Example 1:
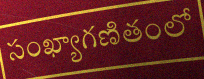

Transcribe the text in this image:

సంఖ్యాగణితంలో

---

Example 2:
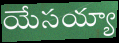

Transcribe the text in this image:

యేసయ్యా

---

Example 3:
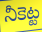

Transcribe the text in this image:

నీకెట్ట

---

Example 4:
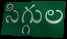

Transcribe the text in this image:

సిగ్గుల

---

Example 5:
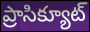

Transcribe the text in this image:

ప్రాసిక్యూట్